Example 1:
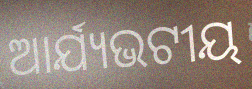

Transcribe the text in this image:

ଆର୍ଯ୍ୟଭଟୀୟ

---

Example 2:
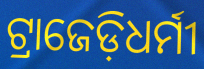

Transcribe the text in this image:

ଟ୍ରାଜେଡ଼ିଧର୍ମୀ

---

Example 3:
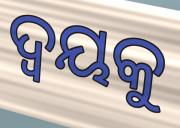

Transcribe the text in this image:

ଦ୍ୱୟକୁ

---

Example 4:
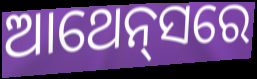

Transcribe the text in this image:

ଆଥେନ୍‍ସରେ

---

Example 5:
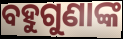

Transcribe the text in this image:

ବହୁଗୁଣାଙ୍କ